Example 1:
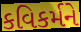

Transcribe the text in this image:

કવિકર્મને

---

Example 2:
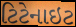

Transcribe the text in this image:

ટિટેનાઇટ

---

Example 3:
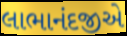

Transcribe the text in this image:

લાભાનંદજીએ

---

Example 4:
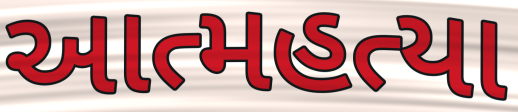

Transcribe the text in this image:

આત્મહત્યા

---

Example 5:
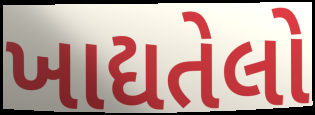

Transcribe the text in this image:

ખાદ્યતેલો